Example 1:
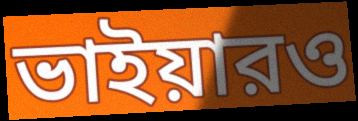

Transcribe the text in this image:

ভাইয়ারও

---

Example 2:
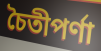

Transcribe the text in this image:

চৈতীপর্ণা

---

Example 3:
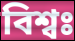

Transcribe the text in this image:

বিশ্বঃ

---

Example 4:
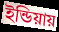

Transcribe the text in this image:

ইন্ডিয়ায়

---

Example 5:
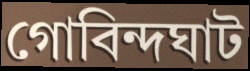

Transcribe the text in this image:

গোবিন্দঘাট